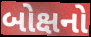
બોક્ષનો